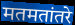
मतमतांतरे